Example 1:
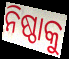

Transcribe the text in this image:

ନିଷ୍ଠାକୁ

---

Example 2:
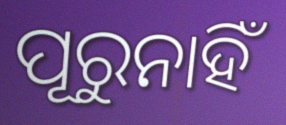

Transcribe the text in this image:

ପୂରୁନାହିଁ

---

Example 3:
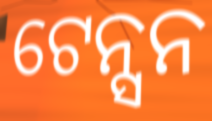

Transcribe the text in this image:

ଟେନ୍ସନ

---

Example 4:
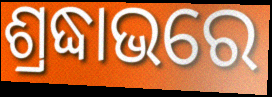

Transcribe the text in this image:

ଶ୍ରଦ୍ଧାଭରେ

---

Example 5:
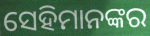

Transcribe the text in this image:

ସେହିମାନଙ୍କର